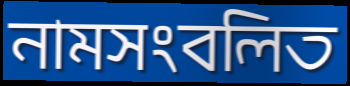
নামসংবলিত